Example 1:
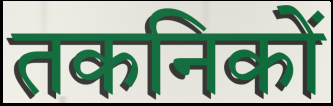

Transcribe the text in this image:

तकनिकों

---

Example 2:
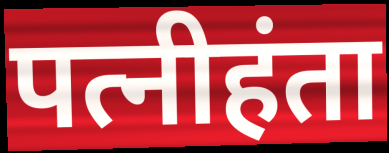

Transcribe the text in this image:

पत्नीहंता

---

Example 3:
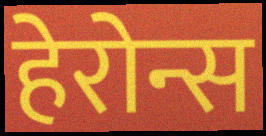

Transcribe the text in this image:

हेरोन्स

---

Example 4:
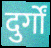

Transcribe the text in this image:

दुर्गों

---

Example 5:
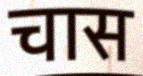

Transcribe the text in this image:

चास